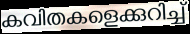
കവിതകളെക്കുറിച്ച്